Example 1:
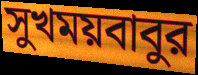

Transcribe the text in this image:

সুখময়বাবুর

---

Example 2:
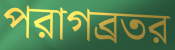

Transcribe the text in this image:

পরাগব্রতর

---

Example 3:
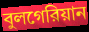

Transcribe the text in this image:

বুলগেরিয়ান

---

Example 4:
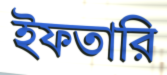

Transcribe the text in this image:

ইফতারি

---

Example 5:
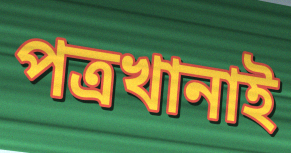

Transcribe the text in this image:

পত্রখানাই